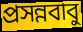
প্রসন্নবাবু